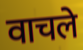
वाचले